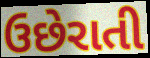
ઉછેરાતી